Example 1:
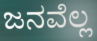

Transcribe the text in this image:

ಜನವೆಲ್ಲ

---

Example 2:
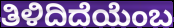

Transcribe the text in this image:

ತಿಳಿದಿದೆಯೆಂಬ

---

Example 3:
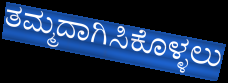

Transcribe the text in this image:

ತಮ್ಮದಾಗಿಸಿಕೊಳ್ಳಲು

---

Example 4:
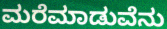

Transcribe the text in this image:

ಮರೆಮಾಡುವೆನು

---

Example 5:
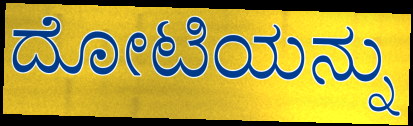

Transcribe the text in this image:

ದೋಟಿಯನ್ನು